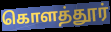
கொளத்தூர்